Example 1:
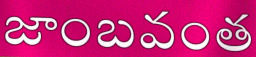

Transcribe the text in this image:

జాంబవంత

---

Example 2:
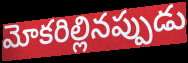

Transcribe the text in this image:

మోకరిల్లినప్పుడు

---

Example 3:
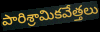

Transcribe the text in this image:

పారిశ్రామికవేత్తలు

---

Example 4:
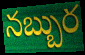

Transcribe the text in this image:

నబ్బుర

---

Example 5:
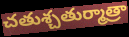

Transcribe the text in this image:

చతుశ్చతుర్మాత్రా